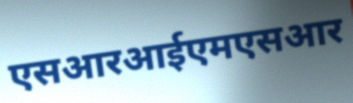
एसआरआईएमएसआर